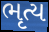
ભૃત્ય